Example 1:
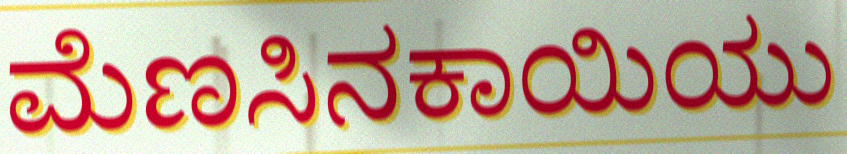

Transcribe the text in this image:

ಮೆಣಸಿನಕಾಯಿಯು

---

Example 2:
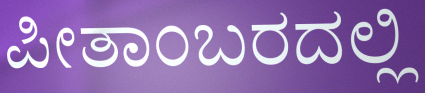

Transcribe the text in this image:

ಪೀತಾಂಬರದಲ್ಲಿ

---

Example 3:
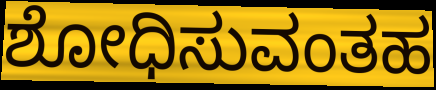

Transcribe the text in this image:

ಶೋಧಿಸುವಂತಹ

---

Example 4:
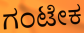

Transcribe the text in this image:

ಗಂಟೇಕ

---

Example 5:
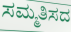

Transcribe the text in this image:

ಸಮ್ಮತಿಸದ